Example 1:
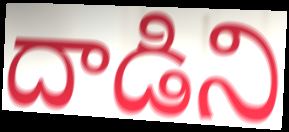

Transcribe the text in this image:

దాడిని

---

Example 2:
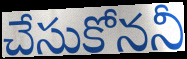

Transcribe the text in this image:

చేసుకోననీ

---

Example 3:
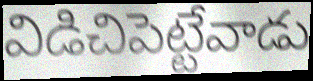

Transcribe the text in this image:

విడిచిపెట్టేవాడు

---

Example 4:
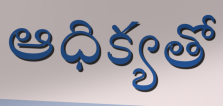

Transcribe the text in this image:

ఆధిక్యతో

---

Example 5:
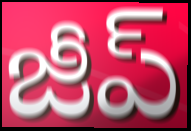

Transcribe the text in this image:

జీప్